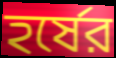
হর্ষের